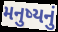
મનુષ્યનું